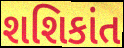
શશિકાંત